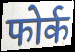
फोर्क